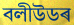
বলীউডৰ